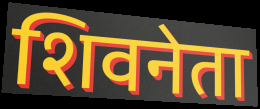
शिवनेता